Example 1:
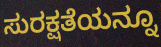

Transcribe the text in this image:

ಸುರಕ್ಷತೆಯನ್ನೂ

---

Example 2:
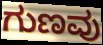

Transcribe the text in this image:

ಗುಣವು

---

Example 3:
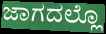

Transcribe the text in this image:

ಜಾಗದಲ್ಲೊ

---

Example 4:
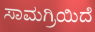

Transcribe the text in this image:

ಸಾಮಗ್ರಿಯಿದೆ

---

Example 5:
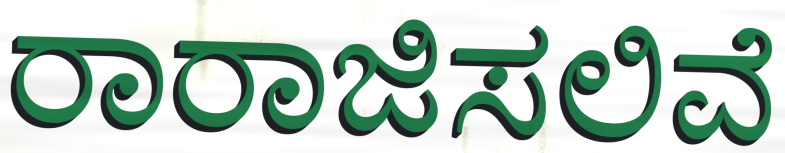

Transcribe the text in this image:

ರಾರಾಜಿಸಲಿವೆ